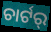
ଚାର୍ଟର୍